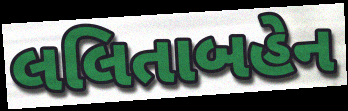
લલિતાબહેન